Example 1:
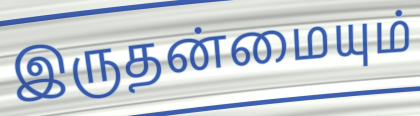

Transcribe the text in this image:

இருதன்மையும்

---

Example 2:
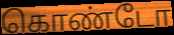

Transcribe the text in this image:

கொண்டோ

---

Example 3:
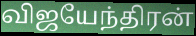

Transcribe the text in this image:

விஜயேந்திரன்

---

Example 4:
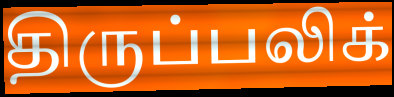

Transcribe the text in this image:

திருப்பலிக்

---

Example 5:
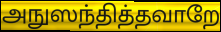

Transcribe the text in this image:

அநுஸந்தித்தவாறே